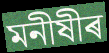
মনীষীৰ